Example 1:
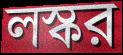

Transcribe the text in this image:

লস্কর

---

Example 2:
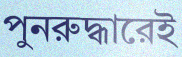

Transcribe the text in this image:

পুনরুদ্ধারেই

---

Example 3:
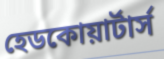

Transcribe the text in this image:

হেডকোয়ার্টার্স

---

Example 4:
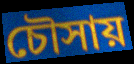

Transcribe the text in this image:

চৌসায়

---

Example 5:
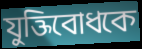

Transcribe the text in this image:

যুক্তিবোধকে